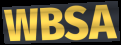
WBSA